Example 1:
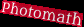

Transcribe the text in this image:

Photomath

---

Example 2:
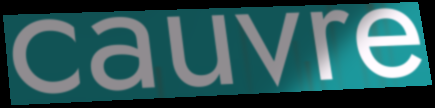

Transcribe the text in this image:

cauvre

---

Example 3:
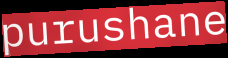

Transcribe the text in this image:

purushane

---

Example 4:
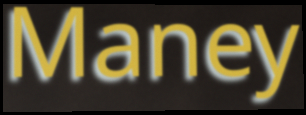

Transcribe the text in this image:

Maney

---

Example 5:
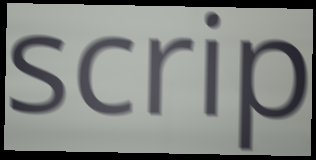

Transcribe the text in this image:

scrip